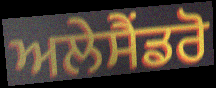
ਅਲੇਸੈਂਡਰੋ